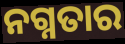
ନଗ୍ନତାର